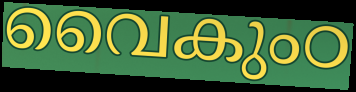
വൈകുംഠ